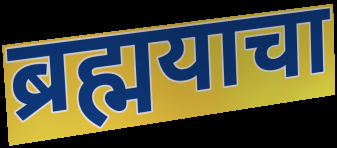
ब्रह्मयाचा